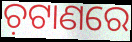
ଚ଼ଟାଣରେ